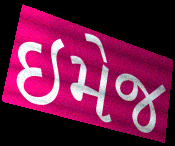
ઇમેજ